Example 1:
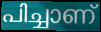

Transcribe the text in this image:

പിച്ചാണ്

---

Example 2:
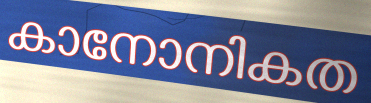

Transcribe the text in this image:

കാനോനികത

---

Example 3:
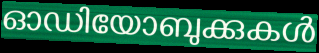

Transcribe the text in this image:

ഓഡിയോബുക്കുകൾ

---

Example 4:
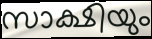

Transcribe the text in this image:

സാക്ഷിയും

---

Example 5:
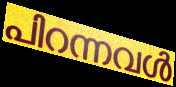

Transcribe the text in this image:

പിറന്നവൾ